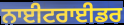
ਨਾਈਟਰਾਈਡਰ